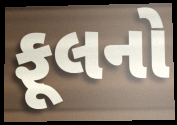
ફૂલનો